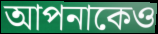
আপনাকেও